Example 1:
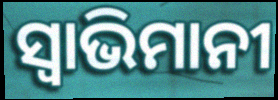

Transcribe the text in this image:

ସ୍ବାଭିମାନୀ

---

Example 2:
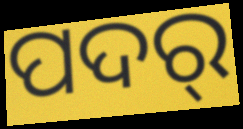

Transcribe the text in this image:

ପଦର୍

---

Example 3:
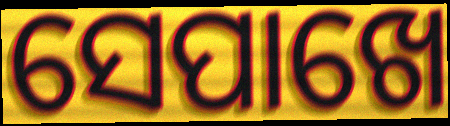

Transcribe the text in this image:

ସେପାଖେ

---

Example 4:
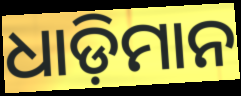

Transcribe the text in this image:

ଧାଡ଼ିମାନ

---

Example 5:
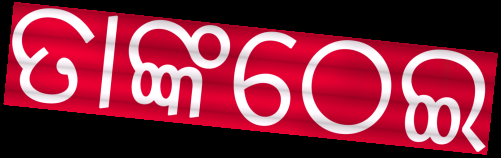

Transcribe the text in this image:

ତାଙ୍କଠେଇ